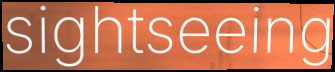
sightseeing